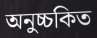
অনুচ্চকিত